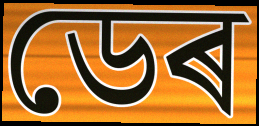
ডেৰ